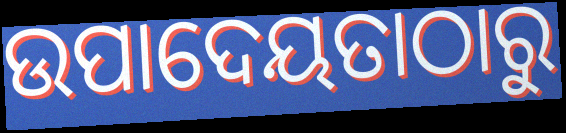
ଉପାଦେୟତାଠାରୁ